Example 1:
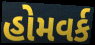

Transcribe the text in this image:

હોમવર્ક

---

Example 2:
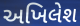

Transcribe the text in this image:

અખિલેશ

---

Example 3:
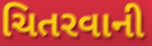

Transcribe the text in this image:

ચિતરવાની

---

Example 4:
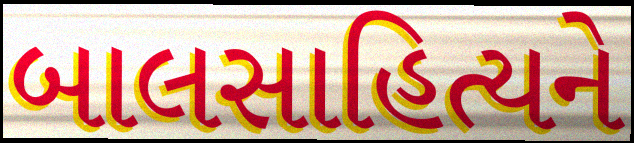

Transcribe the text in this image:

બાલસાહિત્યને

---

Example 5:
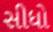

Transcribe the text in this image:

સીધો